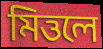
মিত্তলে